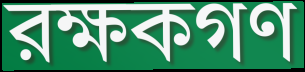
রক্ষকগণ